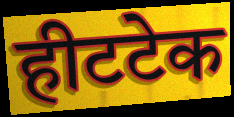
हीटटेक